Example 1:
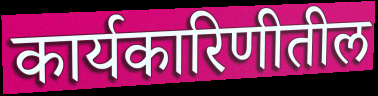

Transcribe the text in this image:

कार्यकारिणीतील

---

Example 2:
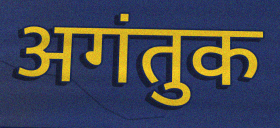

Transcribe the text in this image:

अगंतुक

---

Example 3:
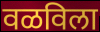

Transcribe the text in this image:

वळविला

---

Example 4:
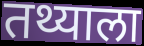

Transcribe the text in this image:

तथ्याला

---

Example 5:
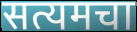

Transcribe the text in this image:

सत्यमचा